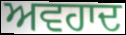
ਅਵਹਾਦ